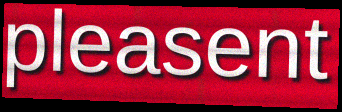
pleasent